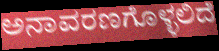
ಅನಾವರಣಗೊಳ್ಳಲಿದೆ